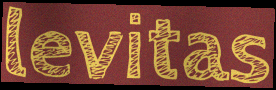
levitas